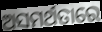
ଅସମର୍ଥତାରେ